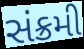
સંક્રમી